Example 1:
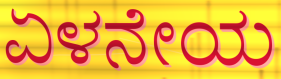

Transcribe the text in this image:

ಏಳನೇಯ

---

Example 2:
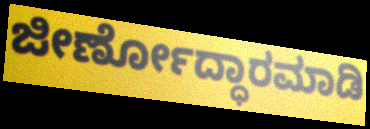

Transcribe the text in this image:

ಜೀರ್ಣೋದ್ಧಾರಮಾಡಿ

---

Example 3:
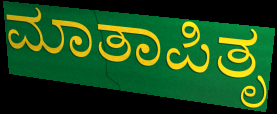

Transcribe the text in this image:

ಮಾತಾಪಿತೃ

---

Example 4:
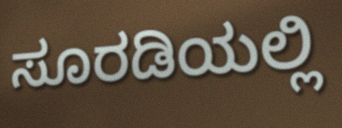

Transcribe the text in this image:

ಸೂರಡಿಯಲ್ಲಿ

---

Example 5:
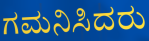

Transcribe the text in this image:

ಗಮನಿಸಿದರು